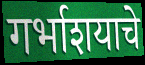
गर्भाशयाचे